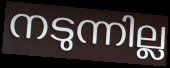
നടുന്നില്ല